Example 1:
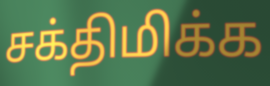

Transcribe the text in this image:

சக்திமிக்க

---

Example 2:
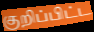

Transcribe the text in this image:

குறிப்பிட்ட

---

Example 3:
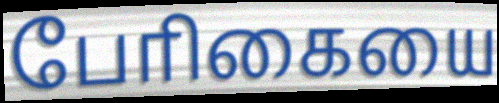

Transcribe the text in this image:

பேரிகையை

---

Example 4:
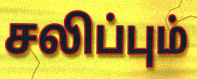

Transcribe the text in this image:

சலிப்பும்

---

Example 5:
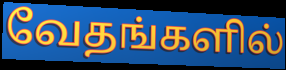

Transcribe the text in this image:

வேதங்களில்